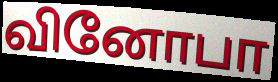
வினோபா